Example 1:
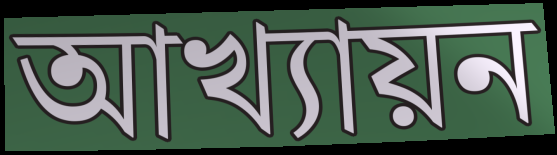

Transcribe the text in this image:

আখ্যায়ন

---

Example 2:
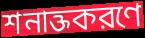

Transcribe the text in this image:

শনাক্তকরণে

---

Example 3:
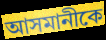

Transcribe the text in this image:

আসমানীকে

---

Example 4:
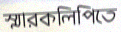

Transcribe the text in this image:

স্মারকলিপিতে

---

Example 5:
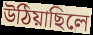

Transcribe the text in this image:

উঠিয়াছিলে